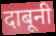
दाबूनी